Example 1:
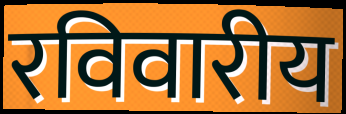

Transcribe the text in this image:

रविवारीय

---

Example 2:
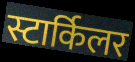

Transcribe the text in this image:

स्टार्किलर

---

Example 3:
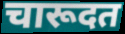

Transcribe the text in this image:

चारूदत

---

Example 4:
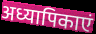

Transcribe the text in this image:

अध्यापिकाएं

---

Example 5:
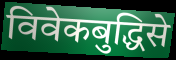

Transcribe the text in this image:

विवेकबुद्धिसे